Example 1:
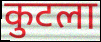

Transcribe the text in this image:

कुटला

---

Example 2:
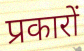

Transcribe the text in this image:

प्रकारों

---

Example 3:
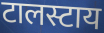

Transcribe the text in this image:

टालस्टाय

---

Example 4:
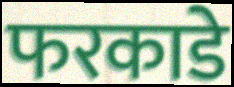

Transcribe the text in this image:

फरकाडे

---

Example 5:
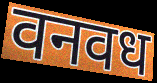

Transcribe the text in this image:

वनवध